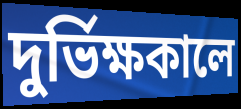
দুর্ভিক্ষকালে